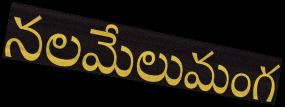
నలమేలుమంగ